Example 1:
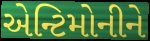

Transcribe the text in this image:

એન્ટિમોનીને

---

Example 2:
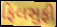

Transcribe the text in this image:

ફિલસુફી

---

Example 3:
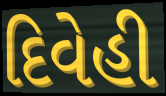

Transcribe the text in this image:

દિવેહી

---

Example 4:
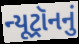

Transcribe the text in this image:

ન્યૂટ્રૉનનું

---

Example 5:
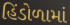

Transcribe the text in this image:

હિંડોળામાં